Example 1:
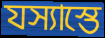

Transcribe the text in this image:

যস্যাস্তে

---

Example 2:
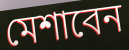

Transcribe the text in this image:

মেশাবেন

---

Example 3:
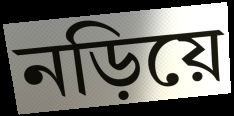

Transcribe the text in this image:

নড়িয়ে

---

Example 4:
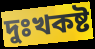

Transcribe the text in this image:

দুঃখকষ্ট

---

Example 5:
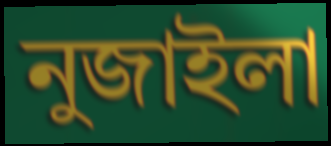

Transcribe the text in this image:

নুজাইলা